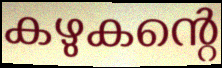
കഴുകന്റെ